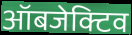
ऑबजेक्टिव